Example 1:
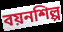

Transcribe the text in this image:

বয়নশিল্প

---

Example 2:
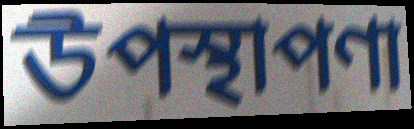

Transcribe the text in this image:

উপস্থাপণা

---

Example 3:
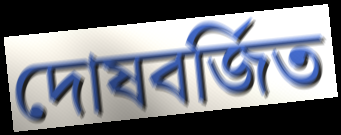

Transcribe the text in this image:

দোষবর্জিত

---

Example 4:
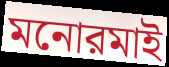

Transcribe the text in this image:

মনোরমাই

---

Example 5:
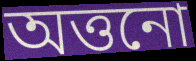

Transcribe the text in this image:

অত্তনো